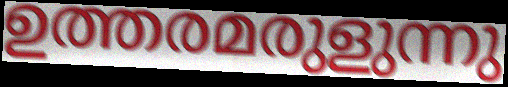
ഉത്തരമരുളുന്നു